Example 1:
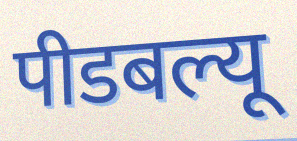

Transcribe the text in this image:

पीडबल्यू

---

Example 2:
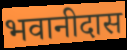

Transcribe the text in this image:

भवानीदास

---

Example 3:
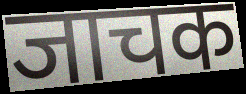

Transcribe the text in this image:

जाचक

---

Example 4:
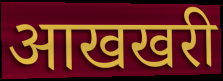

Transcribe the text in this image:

आखखरी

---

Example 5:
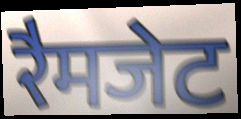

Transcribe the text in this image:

रैमजेट